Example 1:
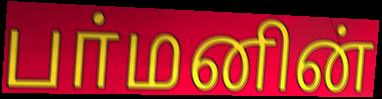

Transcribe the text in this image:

பர்மனின்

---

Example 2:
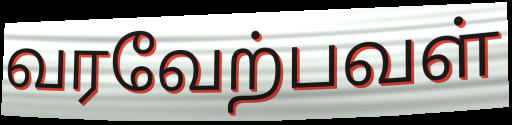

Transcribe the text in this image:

வரவேற்பவள்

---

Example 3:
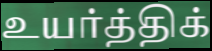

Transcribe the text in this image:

உயர்த்திக்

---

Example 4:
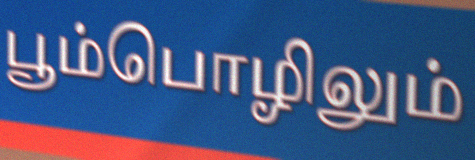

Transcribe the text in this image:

பூம்பொழிலும்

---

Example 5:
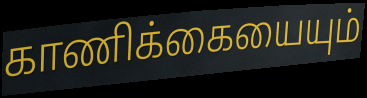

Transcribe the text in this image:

காணிக்கையையும்